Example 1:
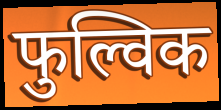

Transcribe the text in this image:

फुल्विक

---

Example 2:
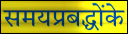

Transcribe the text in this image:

समयप्रबद्धोंके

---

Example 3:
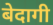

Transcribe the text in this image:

बेदागी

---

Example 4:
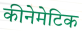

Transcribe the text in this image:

कीनेमेटिक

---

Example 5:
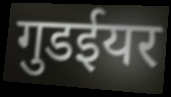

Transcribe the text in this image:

गुडईयर